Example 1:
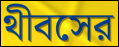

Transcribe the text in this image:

থীবসের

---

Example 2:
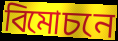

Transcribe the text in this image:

বিমোচনে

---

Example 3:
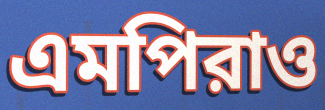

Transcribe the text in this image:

এমপিরাও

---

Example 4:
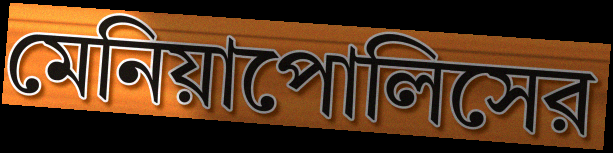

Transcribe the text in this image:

মেনিয়াপোলিসের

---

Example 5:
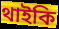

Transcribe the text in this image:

থাইকি